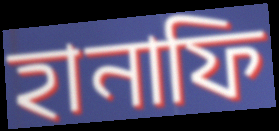
হানাফি